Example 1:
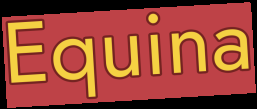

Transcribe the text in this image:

Equina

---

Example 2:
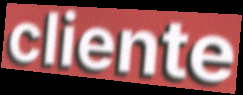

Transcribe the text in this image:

cliente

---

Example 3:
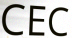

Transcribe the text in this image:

CEC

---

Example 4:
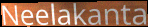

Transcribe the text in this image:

Neelakanta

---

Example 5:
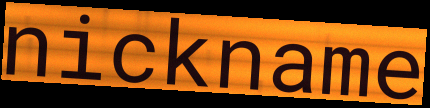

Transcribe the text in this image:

nickname